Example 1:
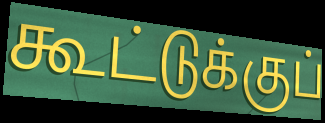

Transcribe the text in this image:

கூட்டுக்குப்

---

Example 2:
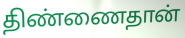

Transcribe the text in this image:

திண்ணைதான்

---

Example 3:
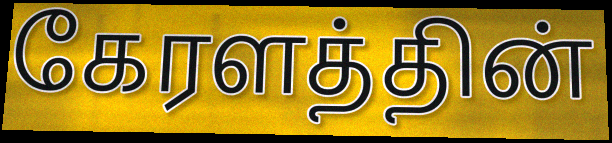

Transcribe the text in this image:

கேரளத்தின்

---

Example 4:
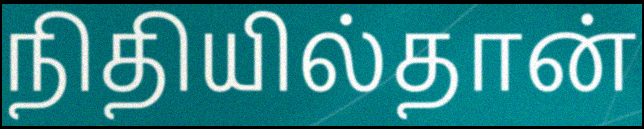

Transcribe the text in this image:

நிதியில்தான்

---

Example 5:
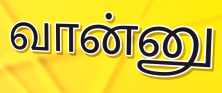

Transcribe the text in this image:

வான்னு